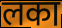
लका